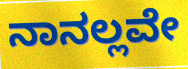
ನಾನಲ್ಲವೇ